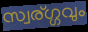
സ്വര്ഗ്ഗവും